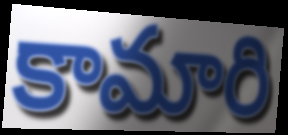
కామారి